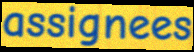
assignees